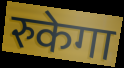
रुकेगा